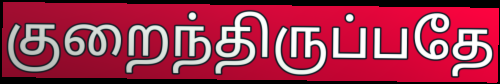
குறைந்திருப்பதே